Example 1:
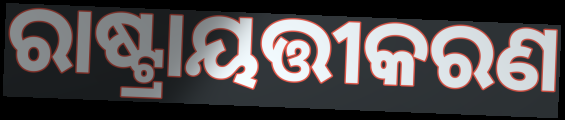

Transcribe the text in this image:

ରାଷ୍ଟ୍ରାୟତ୍ତୀକରଣ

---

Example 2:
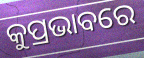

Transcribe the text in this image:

କୁପ୍ରଭାବରେ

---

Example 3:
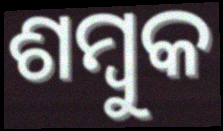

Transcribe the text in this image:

ଶମ୍ବୁକ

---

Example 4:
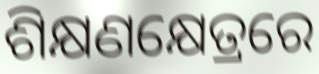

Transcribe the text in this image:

ଶିକ୍ଷଣକ୍ଷେତ୍ରରେ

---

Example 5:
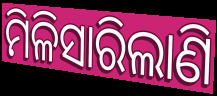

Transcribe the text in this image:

ମିଳିସାରିଲାଣି